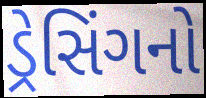
ડ્રેસિંગનો